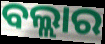
ବଲ୍ଲାର